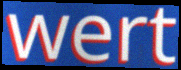
wert